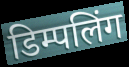
डिम्पलिंग